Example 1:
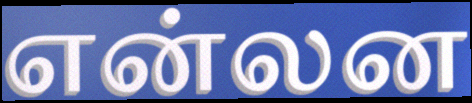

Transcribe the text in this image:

என்லன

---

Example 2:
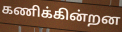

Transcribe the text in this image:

கணிக்கின்றன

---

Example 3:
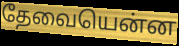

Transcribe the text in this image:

தேவையென்ன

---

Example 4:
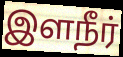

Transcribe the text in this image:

இளநீர்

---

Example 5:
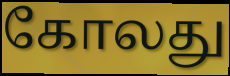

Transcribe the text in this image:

கோலது